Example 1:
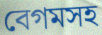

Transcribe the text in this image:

বেগমসহ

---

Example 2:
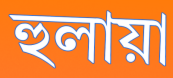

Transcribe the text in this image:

হুলায়া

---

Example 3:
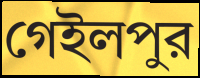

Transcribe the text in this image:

গেইলপুর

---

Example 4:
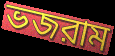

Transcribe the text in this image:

ভজরাম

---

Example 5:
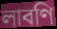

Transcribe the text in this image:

লাবণি